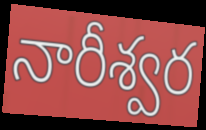
నారీశ్వర